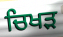
ਚਿਖੜ